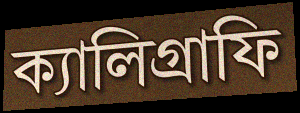
ক্যালিগ্রাফি